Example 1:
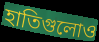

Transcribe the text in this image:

হাতিগুলোও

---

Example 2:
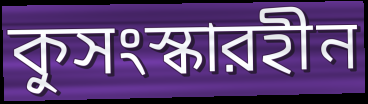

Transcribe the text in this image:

কুসংস্কারহীন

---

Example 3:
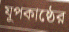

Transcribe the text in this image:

যূপকাষ্ঠের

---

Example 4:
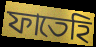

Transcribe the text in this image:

ফাতেহি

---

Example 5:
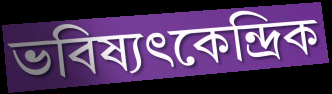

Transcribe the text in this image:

ভবিষ্যৎকেন্দ্রিক